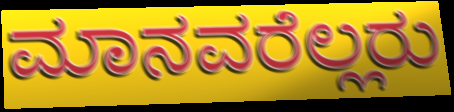
ಮಾನವರೆಲ್ಲರು